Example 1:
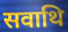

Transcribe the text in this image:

सवाथि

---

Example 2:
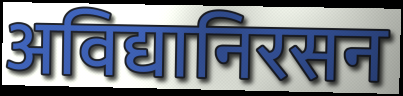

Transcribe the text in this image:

अविद्यानिरसन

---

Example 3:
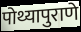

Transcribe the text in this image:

पोथ्यापुराणे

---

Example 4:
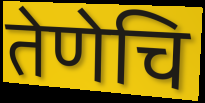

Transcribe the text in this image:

तेणेचि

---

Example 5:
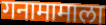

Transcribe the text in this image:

गनामामाला